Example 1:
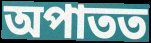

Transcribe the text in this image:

অপাতত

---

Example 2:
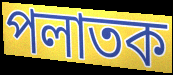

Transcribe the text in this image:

পলাতক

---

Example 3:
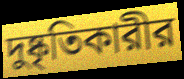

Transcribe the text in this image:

দুষ্কৃতিকারীর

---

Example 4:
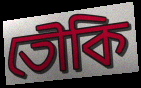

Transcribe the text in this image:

তৌকি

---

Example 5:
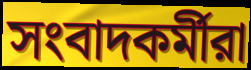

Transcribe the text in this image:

সংবাদকর্মীরা